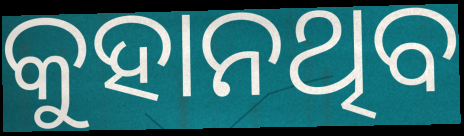
କୁହାନଥିବ